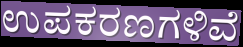
ಉಪಕರಣಗಳಿವೆ